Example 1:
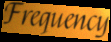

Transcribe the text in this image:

Frequency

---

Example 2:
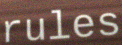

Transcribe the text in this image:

rules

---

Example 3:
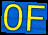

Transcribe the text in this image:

OF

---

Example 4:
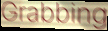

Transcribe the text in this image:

Grabbing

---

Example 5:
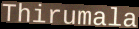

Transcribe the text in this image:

Thirumala